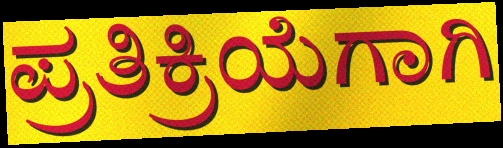
ಪ್ರತಿಕ್ರಿಯೆಗಾಗಿ